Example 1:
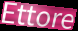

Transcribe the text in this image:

Ettore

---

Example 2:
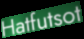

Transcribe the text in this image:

Hatfutsot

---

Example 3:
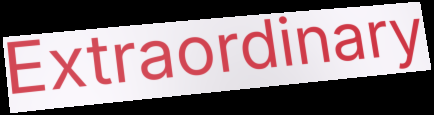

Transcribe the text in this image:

Extraordinary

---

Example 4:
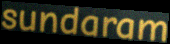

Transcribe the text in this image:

sundaram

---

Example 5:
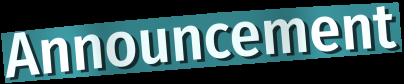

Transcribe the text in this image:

Announcement